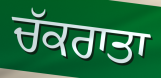
ਚੱਕਰਾਤਾ